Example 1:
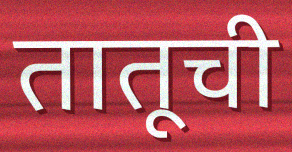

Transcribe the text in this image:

तातूची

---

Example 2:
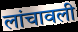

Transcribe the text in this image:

लांचावली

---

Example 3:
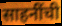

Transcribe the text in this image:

साहनींची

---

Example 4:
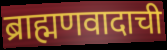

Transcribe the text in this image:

ब्राह्मणवादाची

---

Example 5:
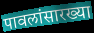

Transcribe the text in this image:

पावलांसारख्या